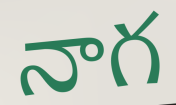
నాగ